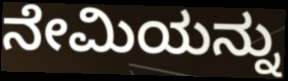
ನೇಮಿಯನ್ನು